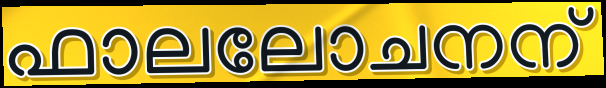
ഫാലലോചനന്